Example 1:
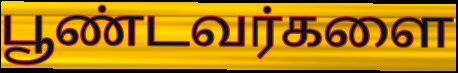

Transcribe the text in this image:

பூண்டவர்களை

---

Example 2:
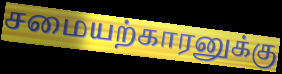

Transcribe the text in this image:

சமையற்காரனுக்கு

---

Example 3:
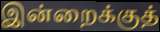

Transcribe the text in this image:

இன்றைக்குத்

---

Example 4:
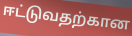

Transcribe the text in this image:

ஈட்டுவதற்கான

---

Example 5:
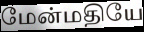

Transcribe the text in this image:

மேன்மதியே